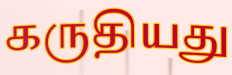
கருதியது